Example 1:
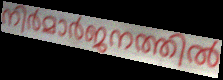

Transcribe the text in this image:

നിർമാർജനത്തിൽ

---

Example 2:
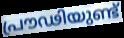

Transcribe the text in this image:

പ്രൗഢിയുണ്ട്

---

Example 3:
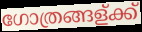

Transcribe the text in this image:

ഗോത്രങ്ങള്ക്ക്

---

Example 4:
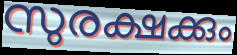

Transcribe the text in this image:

സുരക്ഷക്കും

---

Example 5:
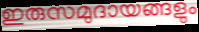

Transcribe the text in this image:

ഇരുസമുദായങ്ങളും